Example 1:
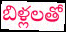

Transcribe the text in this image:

బిళ్లలతో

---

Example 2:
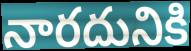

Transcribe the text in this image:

నారదునికి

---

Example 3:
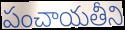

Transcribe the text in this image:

పంచాయతీని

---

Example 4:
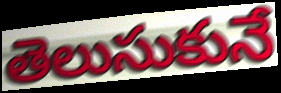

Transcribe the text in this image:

తెలుసుకునే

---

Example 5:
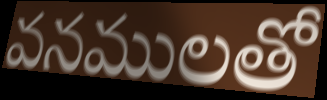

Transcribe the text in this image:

వనములతో